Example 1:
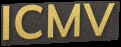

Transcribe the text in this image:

ICMV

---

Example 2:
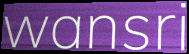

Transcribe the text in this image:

wansri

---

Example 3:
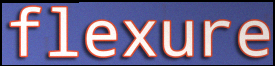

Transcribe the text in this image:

flexure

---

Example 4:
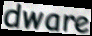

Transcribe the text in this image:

dware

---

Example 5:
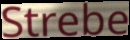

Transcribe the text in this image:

Strebe